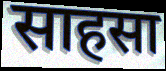
साहसा